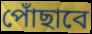
পোঁছাবে